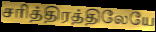
சரித்திரத்திலேயே